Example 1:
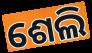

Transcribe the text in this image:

ଶେଲି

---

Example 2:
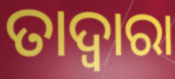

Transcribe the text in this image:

ତାଦ୍ବାରା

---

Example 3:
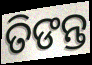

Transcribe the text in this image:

ତିଙନ୍ତ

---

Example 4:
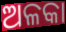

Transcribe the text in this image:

ଅଳକା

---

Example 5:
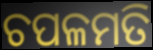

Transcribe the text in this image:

ଚପଳମତି